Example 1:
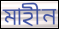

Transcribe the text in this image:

মাহীন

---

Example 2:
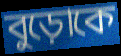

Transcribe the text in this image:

বুড়োকে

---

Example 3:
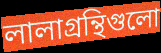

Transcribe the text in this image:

লালাগ্রন্থিগুলো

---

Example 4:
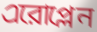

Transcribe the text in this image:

এরোপ্লেন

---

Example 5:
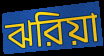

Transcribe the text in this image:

ঝরিয়া